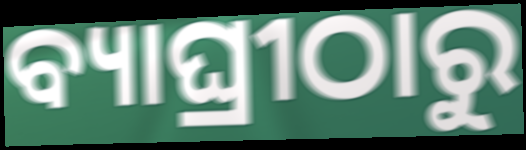
ବ୍ୟାଘ୍ରୀଠାରୁ